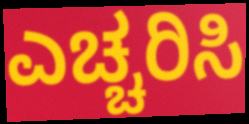
ಎಚ್ಚರಿಸಿ